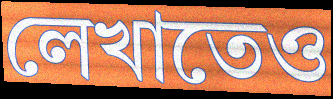
লেখাতেও